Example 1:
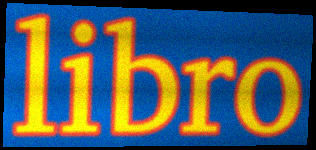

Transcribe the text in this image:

libro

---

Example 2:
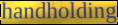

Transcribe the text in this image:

handholding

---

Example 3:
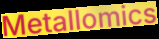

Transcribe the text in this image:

Metallomics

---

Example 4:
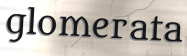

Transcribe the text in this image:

glomerata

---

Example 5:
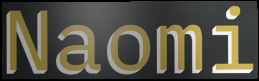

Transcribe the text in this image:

Naomi